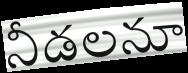
నీడలనూ